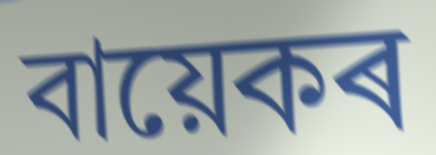
বায়েকৰ